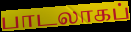
பாடலாகப்